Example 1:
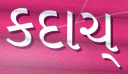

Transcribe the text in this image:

કદાચ્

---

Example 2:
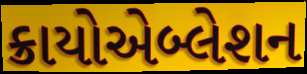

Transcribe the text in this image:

ક્રાયોએબ્લેશન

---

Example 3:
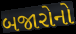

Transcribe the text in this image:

બજારોનો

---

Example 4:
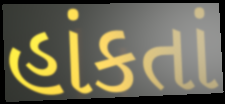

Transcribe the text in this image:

હાંકતાં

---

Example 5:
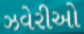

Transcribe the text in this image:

ઝવેરીઓ